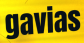
gavias